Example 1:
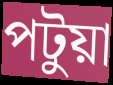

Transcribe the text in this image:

পটুয়া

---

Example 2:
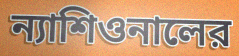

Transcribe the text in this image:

ন্যাশিওনালের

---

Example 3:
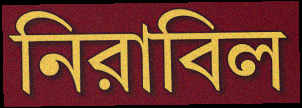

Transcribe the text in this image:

নিরাবিল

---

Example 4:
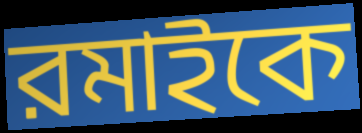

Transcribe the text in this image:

রমাইকে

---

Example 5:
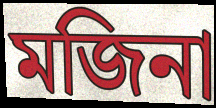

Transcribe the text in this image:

মজিনা